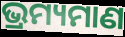
ଭ୍ରମ୍ୟମାଣ